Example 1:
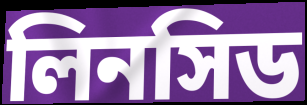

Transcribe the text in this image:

লিনসিড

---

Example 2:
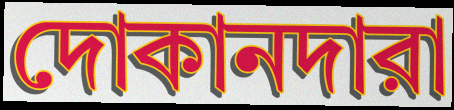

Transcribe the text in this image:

দোকানদারা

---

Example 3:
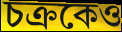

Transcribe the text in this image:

চক্রকেও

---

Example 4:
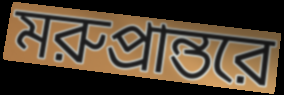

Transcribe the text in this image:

মরুপ্রান্তরে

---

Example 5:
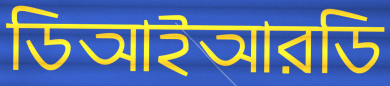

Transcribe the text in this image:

ডিআইআরডি